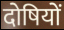
दोषियों